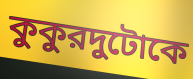
কুকুরদুটোকে